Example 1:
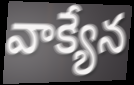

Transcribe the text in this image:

వాక్యేన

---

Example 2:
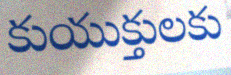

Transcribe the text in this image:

కుయుక్తులకు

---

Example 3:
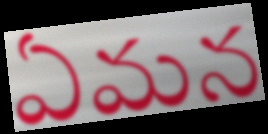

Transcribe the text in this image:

ఏమన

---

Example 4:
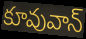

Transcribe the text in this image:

కూవువాన్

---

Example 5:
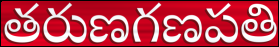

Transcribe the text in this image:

తరుణగణపతి